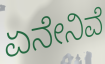
ಏನೇನಿವೆ